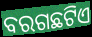
ବରଗଛଟିଏ